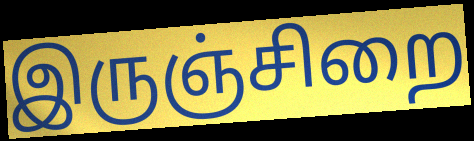
இருஞ்சிறை